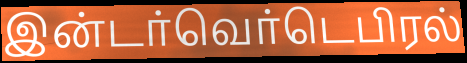
இன்டர்வெர்டெபிரல்